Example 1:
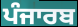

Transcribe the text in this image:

ਪੰਜਾਰਬ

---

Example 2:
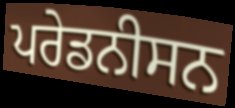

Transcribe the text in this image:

ਪਰੇਡਨੀਸਨ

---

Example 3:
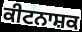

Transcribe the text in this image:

ਕੀਟਨਾਸ਼ਕ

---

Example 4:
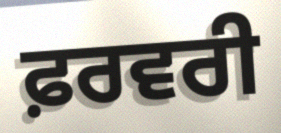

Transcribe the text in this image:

ਫ਼ਰਵਰੀ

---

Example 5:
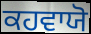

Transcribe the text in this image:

ਕਹਵਾਯੋ